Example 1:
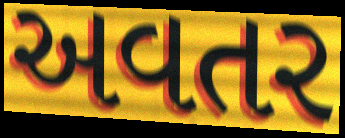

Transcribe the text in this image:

અવતર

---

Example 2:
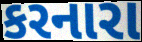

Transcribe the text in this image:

કરનારા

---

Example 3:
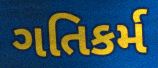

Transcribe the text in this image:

ગતિકર્મ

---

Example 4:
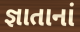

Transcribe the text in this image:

જ્ઞાતાનાં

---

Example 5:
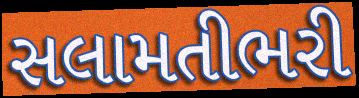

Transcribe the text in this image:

સલામતીભરી